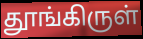
தூங்கிருள்